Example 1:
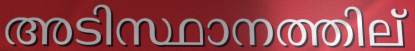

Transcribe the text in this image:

അടിസ്ഥാനത്തില്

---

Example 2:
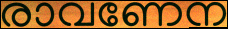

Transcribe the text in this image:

രാവണേന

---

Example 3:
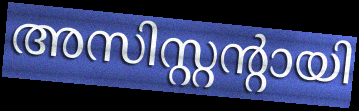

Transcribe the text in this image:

അസിസ്റ്റന്റായി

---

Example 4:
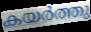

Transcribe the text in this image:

കയർത്തു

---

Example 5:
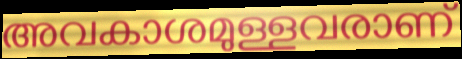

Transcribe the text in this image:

അവകാശമുള്ളവരാണ്